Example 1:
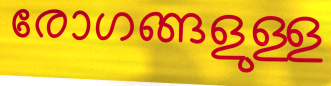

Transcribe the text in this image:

രോഗങ്ങളുള്ള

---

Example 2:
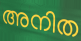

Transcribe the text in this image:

അനിത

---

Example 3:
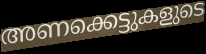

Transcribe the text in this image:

അണക്കെട്ടുകളുടെ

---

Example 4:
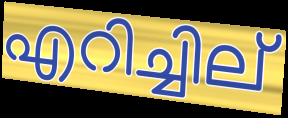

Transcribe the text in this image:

എറിച്ചില്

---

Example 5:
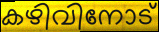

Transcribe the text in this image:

കഴിവിനോട്